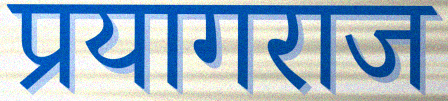
प्रयागराज